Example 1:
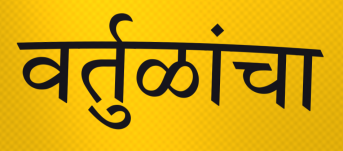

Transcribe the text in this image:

वर्तुळांचा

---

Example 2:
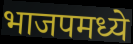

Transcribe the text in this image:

भाजपमध्ये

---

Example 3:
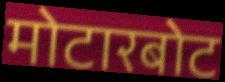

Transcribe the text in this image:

मोटारबोट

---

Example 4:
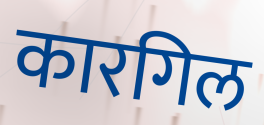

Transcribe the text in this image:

कारगिल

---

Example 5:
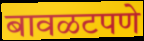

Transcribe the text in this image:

बावळटपणे